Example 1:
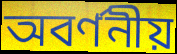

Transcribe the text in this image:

অবর্ণনীয়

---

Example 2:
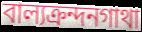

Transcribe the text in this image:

বাল্যক্রন্দনগাথা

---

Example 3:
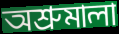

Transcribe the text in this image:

অশ্রুমালা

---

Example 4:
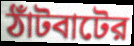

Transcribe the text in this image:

ঠাঁটবাটের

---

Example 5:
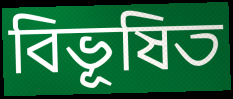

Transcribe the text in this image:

বিভূষিত